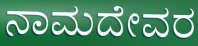
ನಾಮದೇವರ